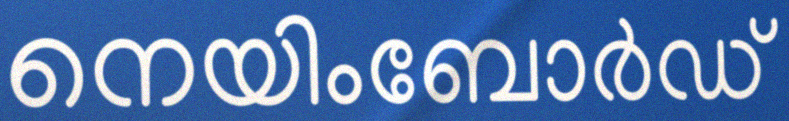
നെയിംബോർഡ്